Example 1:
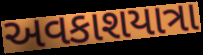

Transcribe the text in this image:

અવકાશયાત્રા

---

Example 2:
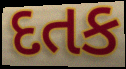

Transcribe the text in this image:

દતક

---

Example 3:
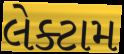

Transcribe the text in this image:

લેક્ટામ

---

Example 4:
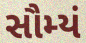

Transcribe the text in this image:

સૌમ્યં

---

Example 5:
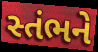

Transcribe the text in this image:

સ્તંભને